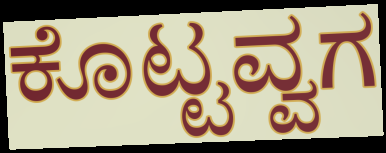
ಕೊಟ್ಟವ್ವಗ